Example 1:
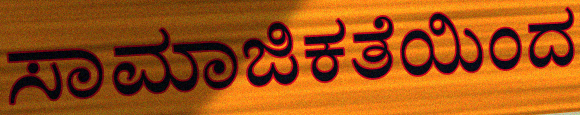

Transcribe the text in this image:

ಸಾಮಾಜಿಕತೆಯಿಂದ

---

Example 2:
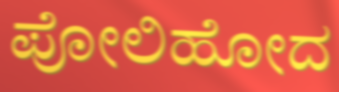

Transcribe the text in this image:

ಪೋಲಿಹೋದ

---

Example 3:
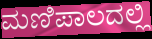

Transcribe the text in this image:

ಮಣಿಪಾಲದಲ್ಲಿ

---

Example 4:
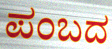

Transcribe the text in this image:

ಪಂಬದ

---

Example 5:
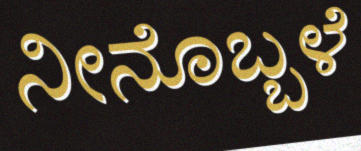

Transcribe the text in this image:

ನೀನೊಬ್ಬಳೆ